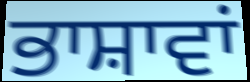
ਭਾਸ਼ਾਵਾਂ